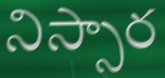
నిస్సార